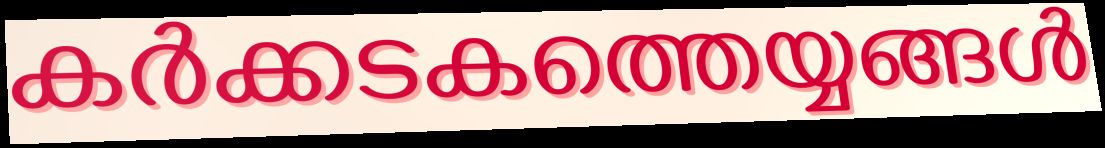
കർക്കടകത്തെയ്യങ്ങൾ